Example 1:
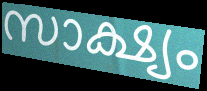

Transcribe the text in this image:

സാക്ഷ്യം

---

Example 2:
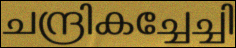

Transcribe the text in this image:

ചന്ദ്രികച്ചേച്ചി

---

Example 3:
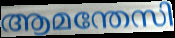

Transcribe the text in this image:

ആമന്തേസി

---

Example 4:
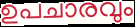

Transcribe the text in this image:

ഉപചാരവും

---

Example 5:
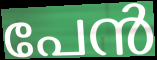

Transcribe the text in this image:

പേൻ